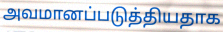
அவமானப்படுத்தியதாக